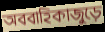
অববাহিকাজুড়ে